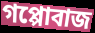
গপ্পোবাজ